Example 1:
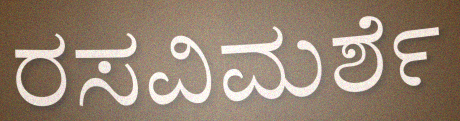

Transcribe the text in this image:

ರಸವಿಮರ್ಶೆ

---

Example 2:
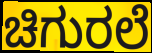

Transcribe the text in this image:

ಚಿಗುರಲೆ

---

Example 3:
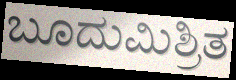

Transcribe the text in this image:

ಬೂದುಮಿಶ್ರಿತ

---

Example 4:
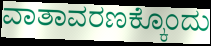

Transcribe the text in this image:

ವಾತಾವರಣಕ್ಕೊಂದು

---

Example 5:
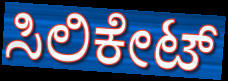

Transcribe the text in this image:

ಸಿಲಿಕೇಟ್